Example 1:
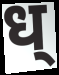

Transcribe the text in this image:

ध्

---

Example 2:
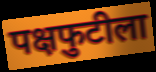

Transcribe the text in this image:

पक्षफुटीला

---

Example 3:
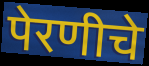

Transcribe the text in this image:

पेरणीचे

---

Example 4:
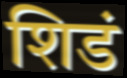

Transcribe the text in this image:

शिडं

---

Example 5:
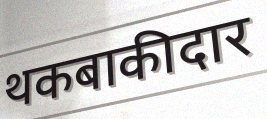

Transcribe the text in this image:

थकबाकीदार